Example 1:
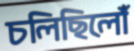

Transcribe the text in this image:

চলিছিলোঁ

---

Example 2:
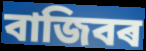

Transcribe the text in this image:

বাজিবৰ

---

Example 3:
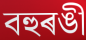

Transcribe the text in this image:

বহুৰঙী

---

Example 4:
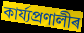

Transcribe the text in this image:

কাৰ্য্যপ্ৰণালীৰ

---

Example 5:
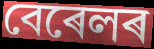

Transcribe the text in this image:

বেৰেলৰ